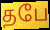
தபே